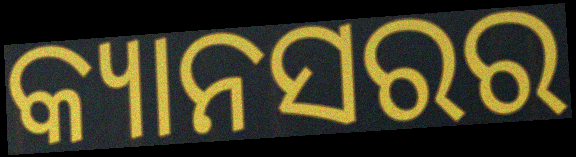
କ୍ୟାନସରର